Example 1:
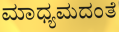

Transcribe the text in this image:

ಮಾಧ್ಯಮದಂತೆ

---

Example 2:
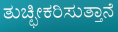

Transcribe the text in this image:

ತುಚ್ಛೀಕರಿಸುತ್ತಾನೆ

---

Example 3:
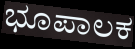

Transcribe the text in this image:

ಭೂಪಾಲಕ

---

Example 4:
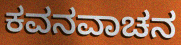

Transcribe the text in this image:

ಕವನವಾಚನ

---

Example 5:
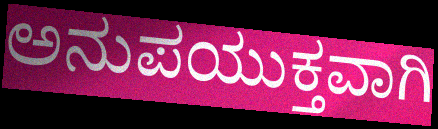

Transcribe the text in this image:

ಅನುಪಯುಕ್ತವಾಗಿ